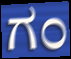
ಗಂ